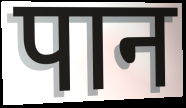
पान